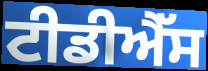
ਟੀਡੀਐੱਸ